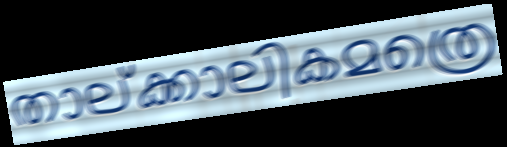
താല്ക്കാലികമത്രെ